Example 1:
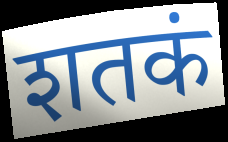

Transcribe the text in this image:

शतकं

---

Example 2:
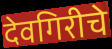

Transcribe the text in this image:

देवगिरीचे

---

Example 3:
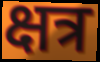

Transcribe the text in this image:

क्षत्र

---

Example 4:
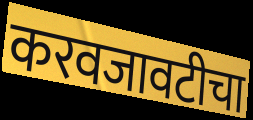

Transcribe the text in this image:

करवजावटीचा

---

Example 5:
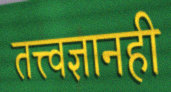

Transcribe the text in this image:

तत्त्वज्ञानही